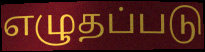
எழுதப்படு